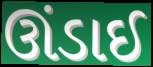
ઊંડાઈ